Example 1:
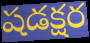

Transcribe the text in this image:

షడక్షర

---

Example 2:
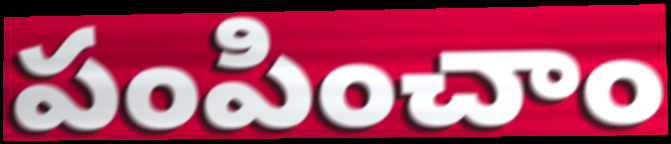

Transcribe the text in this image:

పంపించాం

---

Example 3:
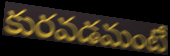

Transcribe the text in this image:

కురవడమంటే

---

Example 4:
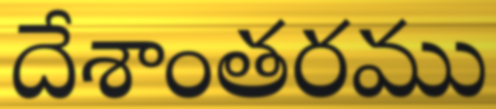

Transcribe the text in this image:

దేశాంతరము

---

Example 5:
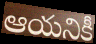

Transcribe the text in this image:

ఆయనికీ